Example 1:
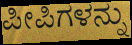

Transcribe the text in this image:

ಪೀಪಿಗಳನ್ನು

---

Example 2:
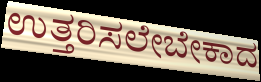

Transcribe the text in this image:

ಉತ್ತರಿಸಲೇಬೇಕಾದ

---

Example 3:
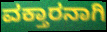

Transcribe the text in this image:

ವಕ್ತಾರನಾಗಿ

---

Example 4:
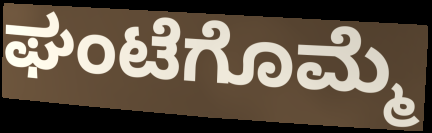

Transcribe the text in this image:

ಘಂಟೆಗೊಮ್ಮೆ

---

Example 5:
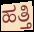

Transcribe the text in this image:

ಹತ್ತಿ